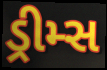
ડ્રીમ્સ